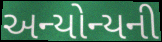
અન્યોન્યની